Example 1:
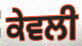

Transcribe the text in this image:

ਕੇਵਲੀ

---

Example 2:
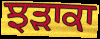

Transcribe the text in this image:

ਝੜਾਕਾ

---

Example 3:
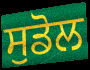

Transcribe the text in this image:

ਸੁਡੋਲ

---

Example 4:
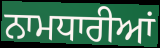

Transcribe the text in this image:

ਨਾਮਧਾਰੀਆਂ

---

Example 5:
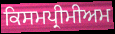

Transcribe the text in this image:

ਕਿਸਮਪ੍ਰੀਮੀਅਮ